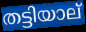
തട്ടിയാല്